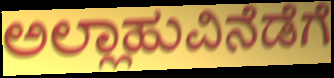
ಅಲ್ಲಾಹುವಿನೆಡೆಗೆ